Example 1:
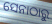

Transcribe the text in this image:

ସେନାଠାରୁ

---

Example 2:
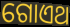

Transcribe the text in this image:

ଗୋଏଥ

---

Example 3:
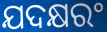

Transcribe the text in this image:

ଯଦକ୍ଷରଂ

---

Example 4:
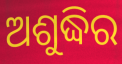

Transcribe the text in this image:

ଅଶୁଦ୍ଧିର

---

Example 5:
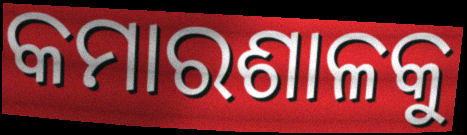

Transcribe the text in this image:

କମାରଶାଳକୁ